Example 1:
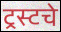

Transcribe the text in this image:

ट्रस्टचे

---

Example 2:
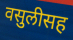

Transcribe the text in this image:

वसुलीसह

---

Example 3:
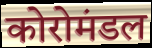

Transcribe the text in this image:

कोरोमंडल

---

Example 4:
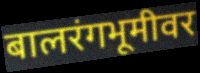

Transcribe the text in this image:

बालरंगभूमीवर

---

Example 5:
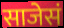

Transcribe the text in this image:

साजेसं